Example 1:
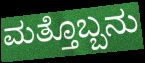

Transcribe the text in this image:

ಮತ್ತೊಬ್ಬನು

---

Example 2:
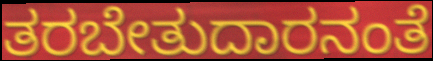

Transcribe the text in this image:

ತರಬೇತುದಾರನಂತೆ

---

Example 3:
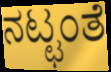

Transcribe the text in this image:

ನಟ್ಟಂತೆ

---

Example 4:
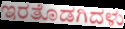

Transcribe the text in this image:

ಇರತೊಡಗಿದಳು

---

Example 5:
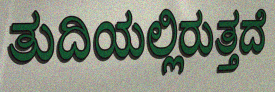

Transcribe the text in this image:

ತುದಿಯಲ್ಲಿರುತ್ತದೆ